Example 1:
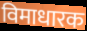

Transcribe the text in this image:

विमाधारक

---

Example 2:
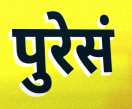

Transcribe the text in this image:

पुरेसं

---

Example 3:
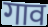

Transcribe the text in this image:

गाव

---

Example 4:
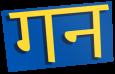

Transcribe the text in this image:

गन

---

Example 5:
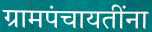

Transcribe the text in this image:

ग्रामपंचायतींना